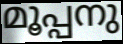
മൂപ്പനു